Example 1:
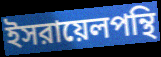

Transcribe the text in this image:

ইসরায়েলপন্থি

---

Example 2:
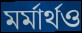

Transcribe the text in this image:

মর্মার্থও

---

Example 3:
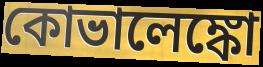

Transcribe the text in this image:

কোভালেঙ্কো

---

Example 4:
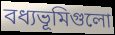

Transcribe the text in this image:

বধ্যভূমিগুলো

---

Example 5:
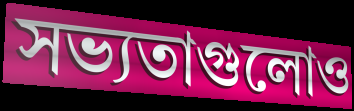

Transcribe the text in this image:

সভ্যতাগুলোও